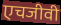
एचजीवी